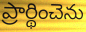
ప్రార్థించెను